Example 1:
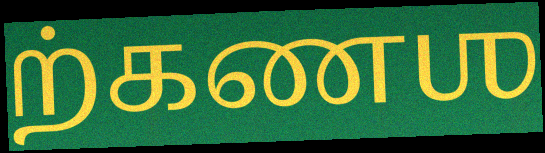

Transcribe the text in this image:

ற்கணஶ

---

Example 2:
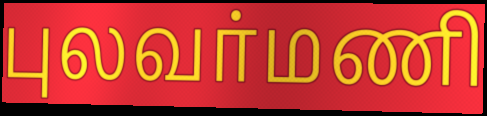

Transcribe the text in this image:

புலவர்மணி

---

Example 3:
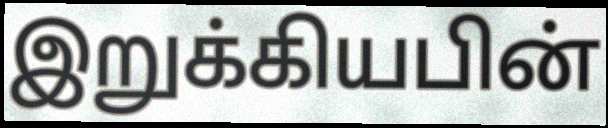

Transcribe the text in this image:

இறுக்கியபின்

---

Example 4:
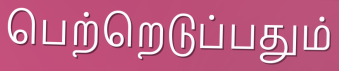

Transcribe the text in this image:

பெற்றெடுப்பதும்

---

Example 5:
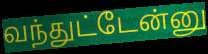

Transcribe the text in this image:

வந்துட்டேன்னு